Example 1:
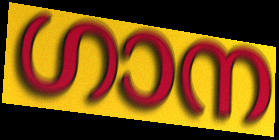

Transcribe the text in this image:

ഗാന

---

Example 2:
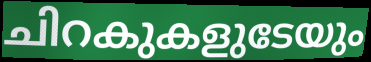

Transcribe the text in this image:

ചിറകുകളുടേയും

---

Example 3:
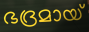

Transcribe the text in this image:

ഭദ്രമായ്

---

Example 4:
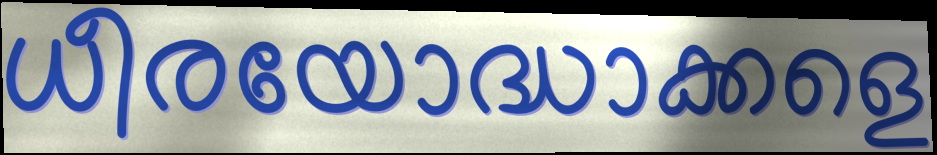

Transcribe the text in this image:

ധീരയോദ്ധാക്കളെ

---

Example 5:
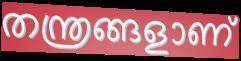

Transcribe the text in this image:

തന്ത്രങ്ങളാണ്